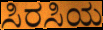
ಸಿರಸಿಯ